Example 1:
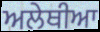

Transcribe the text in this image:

ਅਲੇਥੀਆ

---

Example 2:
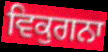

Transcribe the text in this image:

ਵਿਕੁਗਨਾ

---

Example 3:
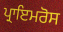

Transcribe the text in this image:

ਪ੍ਰਾਇਮਰੋਸ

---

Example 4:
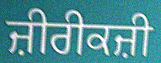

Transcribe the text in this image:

ਜ਼ੀਰੀਕਜ਼ੀ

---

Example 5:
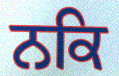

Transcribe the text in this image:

ਨਕਿ